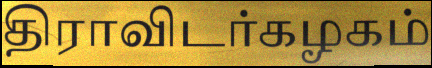
திராவிடர்கழகம்